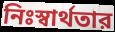
নিঃস্বার্থতার